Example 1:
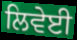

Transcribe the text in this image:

ਲਿਵੇਈ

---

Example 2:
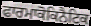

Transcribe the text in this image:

ਫਾਰਮਾਕੋਕਿਨੈਟਿਕ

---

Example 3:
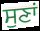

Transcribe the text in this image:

ਸੁਣਾਂ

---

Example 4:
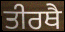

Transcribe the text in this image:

ਤੀਰਥੈ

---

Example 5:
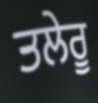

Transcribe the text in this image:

ਤਲੇਰੂ